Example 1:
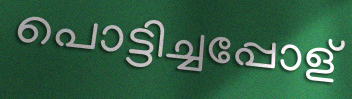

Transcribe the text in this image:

പൊട്ടിച്ചപ്പോള്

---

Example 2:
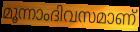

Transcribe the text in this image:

മൂന്നാംദിവസമാണ്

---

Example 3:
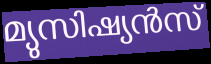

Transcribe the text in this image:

മ്യുസിഷ്യൻസ്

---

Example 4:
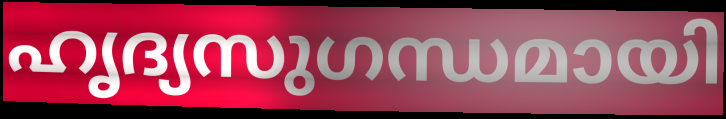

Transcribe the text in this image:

ഹൃദ്യസുഗന്ധമായി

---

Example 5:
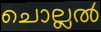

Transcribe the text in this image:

ചൊല്ലൽ